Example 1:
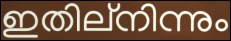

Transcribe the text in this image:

ഇതില്നിന്നും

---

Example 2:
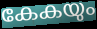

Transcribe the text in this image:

കേകയും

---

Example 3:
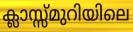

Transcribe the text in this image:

ക്ലാസ്സ്മുറിയിലെ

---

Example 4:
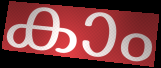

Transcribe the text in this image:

കാം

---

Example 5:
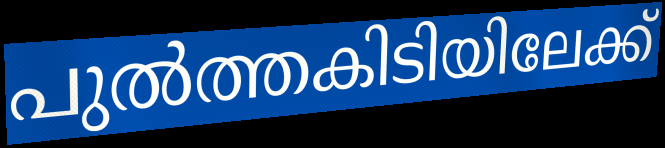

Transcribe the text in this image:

പുൽത്തകിടിയിലേക്ക്